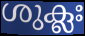
ശുക്ലഃ